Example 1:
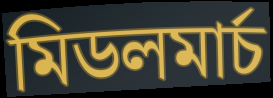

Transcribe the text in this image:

মিডলমাৰ্চ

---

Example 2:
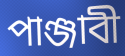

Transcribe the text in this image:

পাঞ্জাবী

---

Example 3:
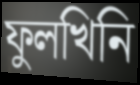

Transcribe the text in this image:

ফুলখিনি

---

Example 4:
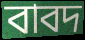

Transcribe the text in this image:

বাবদ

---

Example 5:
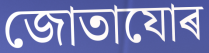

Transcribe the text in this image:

জোতাযোৰ